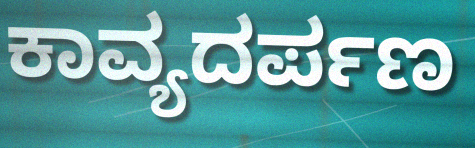
ಕಾವ್ಯದರ್ಪಣ